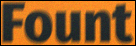
Fount